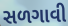
સળગાવી